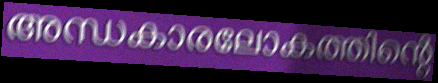
അന്ധകാരലോകത്തിന്റെ